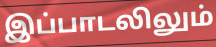
இப்பாடலிலும்